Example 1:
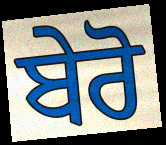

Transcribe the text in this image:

ਬੇਰੋ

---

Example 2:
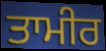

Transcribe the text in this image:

ਤਾਮੀਰ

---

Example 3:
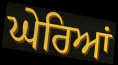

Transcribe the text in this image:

ਘੇਰਿਆਂ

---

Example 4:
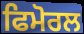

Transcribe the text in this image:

ਫਿਮੋਰਲ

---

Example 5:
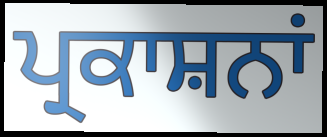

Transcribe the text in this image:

ਪ੍ਰਕਾਸ਼ਨਾਂ